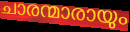
ചാരന്മാരായും